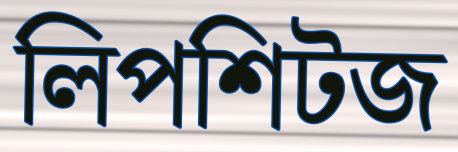
লিপশিটজ